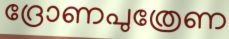
ദ്രോണപുത്രേണ